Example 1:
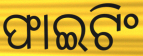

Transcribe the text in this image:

ଫାଇଟିଂ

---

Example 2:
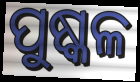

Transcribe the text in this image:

ପୁଷ୍କଳ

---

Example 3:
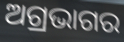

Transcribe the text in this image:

ଅଗ୍ରଭାଗର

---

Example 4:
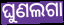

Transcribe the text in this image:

ଘୁଣଲଗା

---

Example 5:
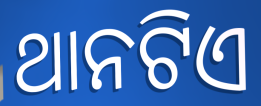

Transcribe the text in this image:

ଥାନଟିଏ